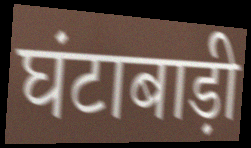
घंटाबाड़ी